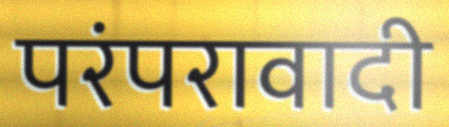
परंपरावादी